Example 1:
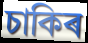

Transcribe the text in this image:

চাকিৰ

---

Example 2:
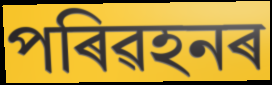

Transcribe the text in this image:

পৰিৱহনৰ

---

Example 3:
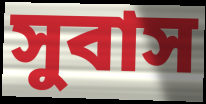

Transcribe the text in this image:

সুবাস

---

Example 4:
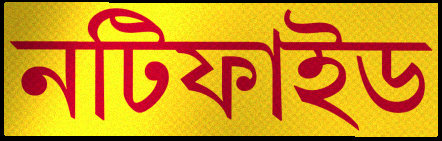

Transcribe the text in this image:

নটিফাইড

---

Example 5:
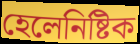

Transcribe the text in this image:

হেলেনিষ্টিক